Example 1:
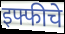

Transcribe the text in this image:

इफ्फीचे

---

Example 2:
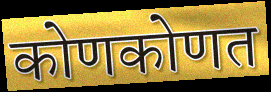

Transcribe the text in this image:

कोणकोणत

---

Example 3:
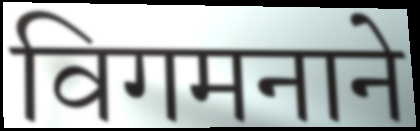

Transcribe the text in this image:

विगमनाने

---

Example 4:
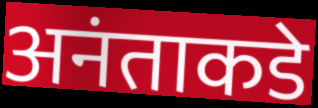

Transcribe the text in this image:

अनंताकडे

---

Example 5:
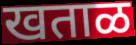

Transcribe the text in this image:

खताळ